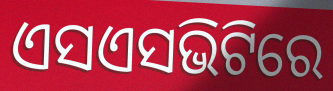
ଏସଏସଭିଟିରେ